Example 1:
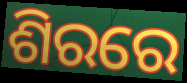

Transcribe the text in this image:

ଶିରରେ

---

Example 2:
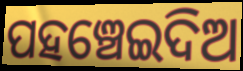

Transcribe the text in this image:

ପହଞ୍ଚେଇଦିଅ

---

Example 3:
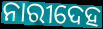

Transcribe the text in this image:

ନାରୀଦେହ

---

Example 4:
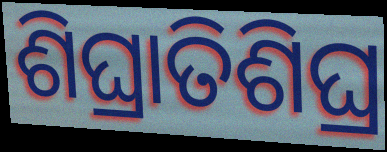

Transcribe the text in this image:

ଶିଘ୍ରାତିଶିଘ୍ର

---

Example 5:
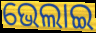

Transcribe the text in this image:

ଭେଲାଇ